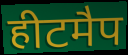
हीटमैप